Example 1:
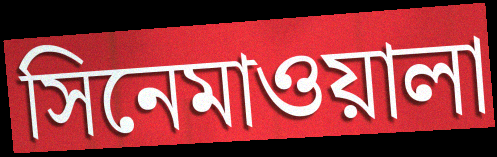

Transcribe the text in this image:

সিনেমাওয়ালা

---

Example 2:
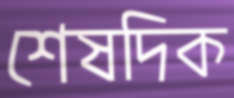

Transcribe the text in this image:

শেষদিক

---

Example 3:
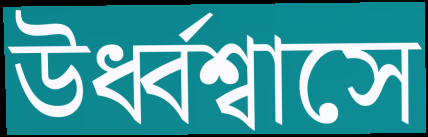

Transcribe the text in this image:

উর্ধ্বশ্বাসে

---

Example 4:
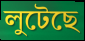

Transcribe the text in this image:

লুটেছে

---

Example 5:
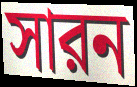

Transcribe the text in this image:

সারন